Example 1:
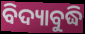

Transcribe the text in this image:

ବିଦ୍ୟାବୁଦ୍ଧି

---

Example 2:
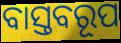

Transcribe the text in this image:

ବାସ୍ତବରୂପ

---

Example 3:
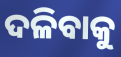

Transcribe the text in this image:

ଦଳିବାକୁ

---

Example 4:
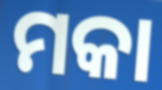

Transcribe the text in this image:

ମକା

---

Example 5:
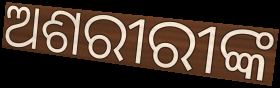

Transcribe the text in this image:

ଅଶରୀରୀଙ୍କ